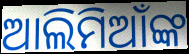
ଆଲିମିଆଁଙ୍କ